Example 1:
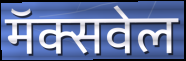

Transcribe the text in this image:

मॅक्सवेल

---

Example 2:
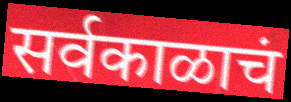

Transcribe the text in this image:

सर्वकाळाचं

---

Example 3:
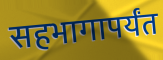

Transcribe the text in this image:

सहभागापर्यंत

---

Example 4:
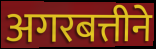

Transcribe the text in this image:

अगरबत्तीने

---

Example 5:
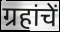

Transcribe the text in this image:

ग्रहांचें